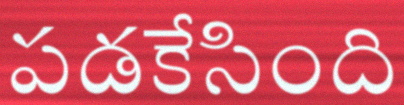
పడకేసింది